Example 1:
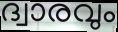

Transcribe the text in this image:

ദ്വാരവും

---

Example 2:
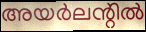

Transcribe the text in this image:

അയർലന്റിൽ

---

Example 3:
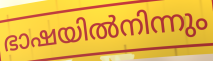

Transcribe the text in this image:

ഭാഷയിൽനിന്നും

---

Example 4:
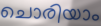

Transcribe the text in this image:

ചൊരിയാം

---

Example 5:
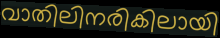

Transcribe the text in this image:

വാതിലിനരികിലായി